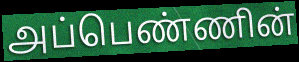
அப்பெண்ணின்